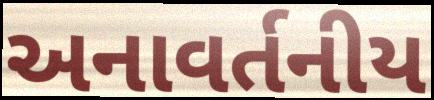
અનાવર્તનીય